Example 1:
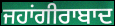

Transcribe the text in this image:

ਜਹਾਂਗੀਰਾਬਾਦ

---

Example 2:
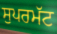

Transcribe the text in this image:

ਸੁਪਰਮੱਟ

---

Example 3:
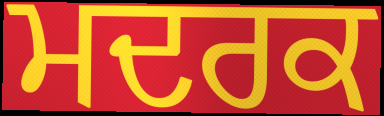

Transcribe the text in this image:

ਮਦਰਕ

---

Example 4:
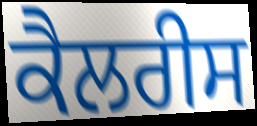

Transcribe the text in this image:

ਕੈਲਰੀਸ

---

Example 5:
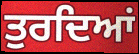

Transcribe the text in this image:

ਤੁਰਦਿਆਂ